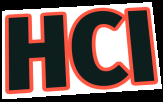
HCI